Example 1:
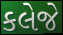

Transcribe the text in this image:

કલેજે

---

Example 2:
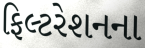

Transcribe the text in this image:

ફિલ્ટરેશનના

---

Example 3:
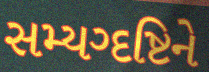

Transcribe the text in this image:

સમ્યગ્દષ્ટિને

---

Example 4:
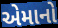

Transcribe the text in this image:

એમાનો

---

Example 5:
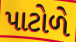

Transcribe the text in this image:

પાટોળે